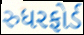
રુધરફોર્ડ